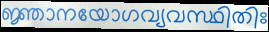
ജ്ഞാനയോഗവ്യവസ്ഥിതിഃ